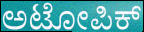
ಅಟೋಪಿಕ್